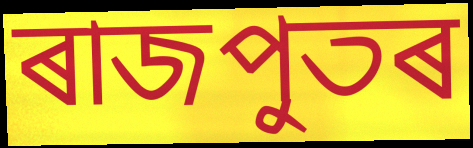
ৰাজপুতৰ